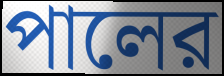
পালের